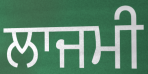
ਲਾਜਮੀ